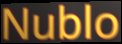
Nublo